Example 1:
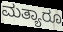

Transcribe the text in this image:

ಮತ್ಯಾರೂ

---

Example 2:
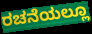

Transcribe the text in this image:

ರಚನೆಯಲ್ಲೂ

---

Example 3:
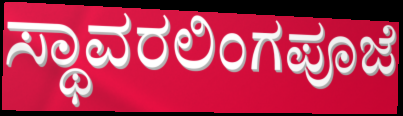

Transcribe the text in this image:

ಸ್ಥಾವರಲಿಂಗಪೂಜೆ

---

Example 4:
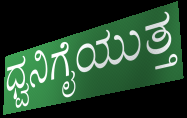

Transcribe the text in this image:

ಧ್ವನಿಗೈಯುತ್ತ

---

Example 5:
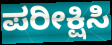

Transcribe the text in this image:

ಪರೀಕ್ಷಿಸಿ